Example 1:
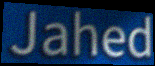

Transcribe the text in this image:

Jahed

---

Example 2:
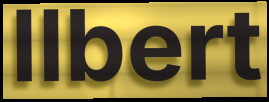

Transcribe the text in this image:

Ilbert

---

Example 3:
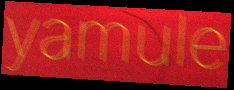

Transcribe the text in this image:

yamule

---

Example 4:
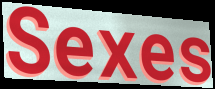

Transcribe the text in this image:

Sexes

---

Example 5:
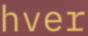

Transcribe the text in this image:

hver